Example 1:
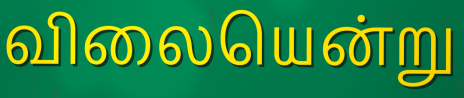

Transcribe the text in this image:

விலையென்று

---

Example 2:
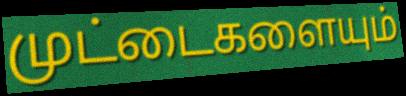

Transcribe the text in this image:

முட்டைகளையும்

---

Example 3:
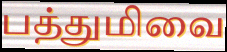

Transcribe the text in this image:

பத்துமிவை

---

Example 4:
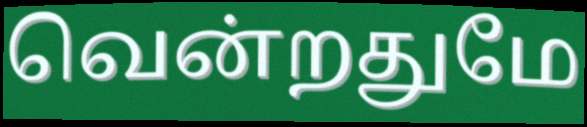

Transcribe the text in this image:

வென்றதுமே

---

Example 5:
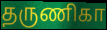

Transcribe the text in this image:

தருணிகா